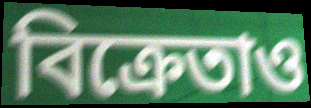
বিক্রেতাও